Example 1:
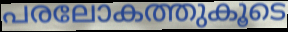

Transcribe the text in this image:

പരലോകത്തുകൂടെ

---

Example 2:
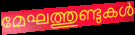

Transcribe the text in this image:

മേഘത്തുണ്ടുകൾ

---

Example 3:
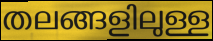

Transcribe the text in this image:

തലങ്ങളിലുള്ള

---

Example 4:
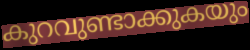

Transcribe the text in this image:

കുറവുണ്ടാക്കുകയും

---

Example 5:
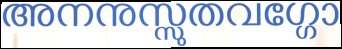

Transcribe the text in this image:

അനനുസ്സുതവഗ്ഗോ